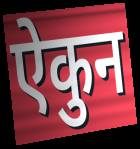
ऐकुन